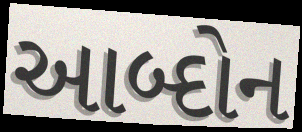
આબ્દોન